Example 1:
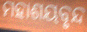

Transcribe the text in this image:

ମହାଶୟବୃନ୍ଦ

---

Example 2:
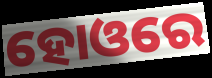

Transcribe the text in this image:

ହୋଓରେ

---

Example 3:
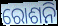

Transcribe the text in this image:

ରୋଶନି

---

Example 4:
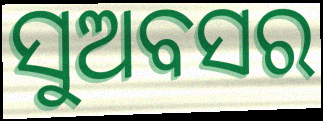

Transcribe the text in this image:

ସୁଅବସର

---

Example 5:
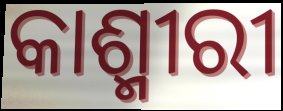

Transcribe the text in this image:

କାଶ୍ମୀରୀ